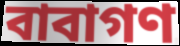
বাবাগণ